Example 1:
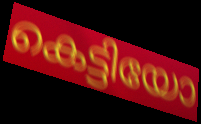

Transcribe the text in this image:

കെട്ടിയോ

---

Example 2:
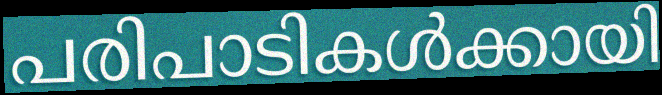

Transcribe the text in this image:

പരിപാടികൾക്കായി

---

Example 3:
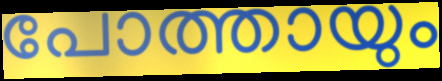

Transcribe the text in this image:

പോത്തായും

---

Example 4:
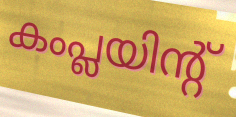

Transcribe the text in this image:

കംപ്ലയിന്റ്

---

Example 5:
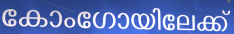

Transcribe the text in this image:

കോംഗോയിലേക്ക്